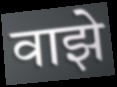
वाझे